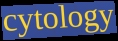
cytology